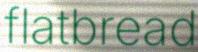
flatbread